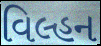
વિલ્હન